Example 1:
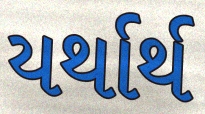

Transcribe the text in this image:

યર્થાર્થ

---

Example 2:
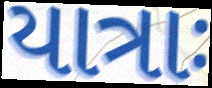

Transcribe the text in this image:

યાત્રાઃ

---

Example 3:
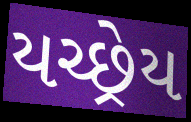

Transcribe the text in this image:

યચ્છ્રેય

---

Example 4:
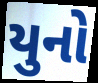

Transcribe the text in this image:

યુનો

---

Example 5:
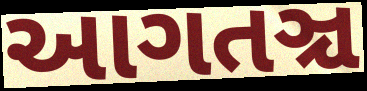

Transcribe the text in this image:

આગતઞ્ચ